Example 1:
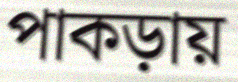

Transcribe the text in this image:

পাকড়ায়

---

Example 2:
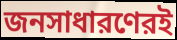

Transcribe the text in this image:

জনসাধারণেরই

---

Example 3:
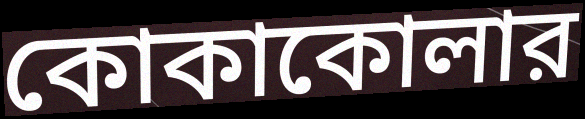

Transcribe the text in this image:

কোকাকোলার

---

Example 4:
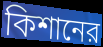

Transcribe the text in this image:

কিশানের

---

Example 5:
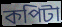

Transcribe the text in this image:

কপিটা